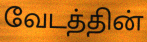
வேடத்தின்